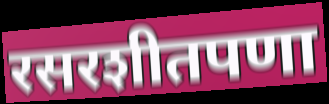
रसरशीतपणा